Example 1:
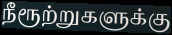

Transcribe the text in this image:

நீரூற்றுகளுக்கு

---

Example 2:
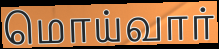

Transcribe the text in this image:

மொய்வார்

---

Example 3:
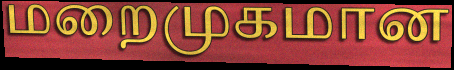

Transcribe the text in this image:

மறைமுகமான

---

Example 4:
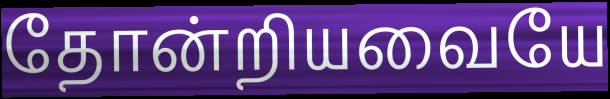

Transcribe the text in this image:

தோன்றியவையே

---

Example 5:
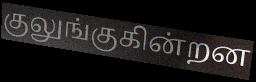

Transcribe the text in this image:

குலுங்குகின்றன